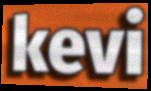
kevi